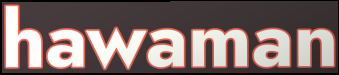
hawaman